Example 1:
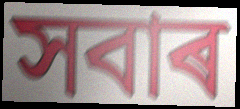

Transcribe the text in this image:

সবাৰ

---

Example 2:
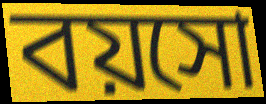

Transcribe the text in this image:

বয়সো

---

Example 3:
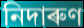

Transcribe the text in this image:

নিদাৰুণ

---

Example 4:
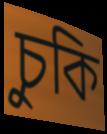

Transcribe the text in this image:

চুকি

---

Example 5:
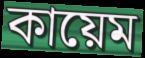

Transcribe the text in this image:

কায়েম